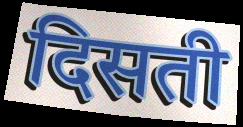
दिसती